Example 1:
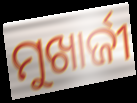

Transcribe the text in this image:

ମୁଖାର୍ଜୀ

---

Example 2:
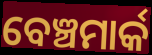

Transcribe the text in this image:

ବେଞ୍ଚମାର୍କ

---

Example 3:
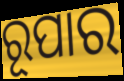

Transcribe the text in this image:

ରୂପାର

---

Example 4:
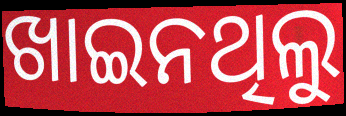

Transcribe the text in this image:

ଖାଇନଥିଲୁ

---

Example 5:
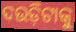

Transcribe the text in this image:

ଦଉଡ଼ିଟାକୁ